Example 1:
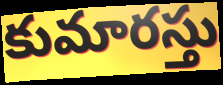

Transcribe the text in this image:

కుమారస్తు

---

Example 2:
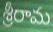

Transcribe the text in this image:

శ్రీరామ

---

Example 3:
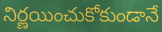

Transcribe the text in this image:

నిర్ణయించుకోకుండానే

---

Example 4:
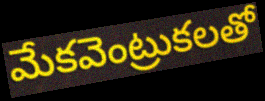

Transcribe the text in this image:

మేకవెంట్రుకలతో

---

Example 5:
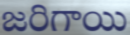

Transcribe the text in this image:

జరిగాయి